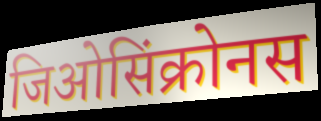
जिओसिंक्रोनस